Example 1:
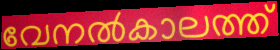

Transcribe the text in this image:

വേനൽകാലത്ത്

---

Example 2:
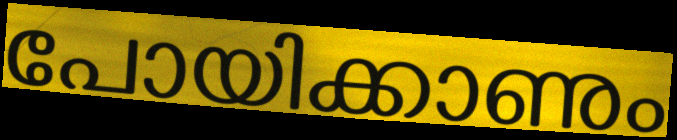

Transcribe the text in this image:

പോയിക്കാണും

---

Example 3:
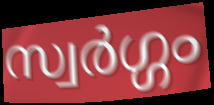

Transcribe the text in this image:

സ്വർഗ്ഗം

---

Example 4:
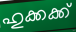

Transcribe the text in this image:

ഹുക്കക്ക്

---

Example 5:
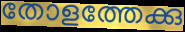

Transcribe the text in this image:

തോളത്തേക്കു